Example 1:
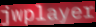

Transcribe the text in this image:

jwplayer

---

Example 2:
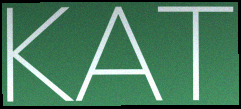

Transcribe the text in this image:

KAT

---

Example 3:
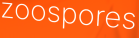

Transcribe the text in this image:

zoospores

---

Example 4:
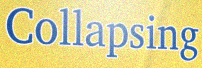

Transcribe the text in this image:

Collapsing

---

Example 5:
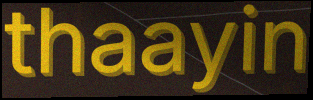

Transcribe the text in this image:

thaayin